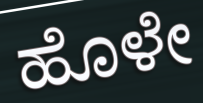
ಹೊಳೇ